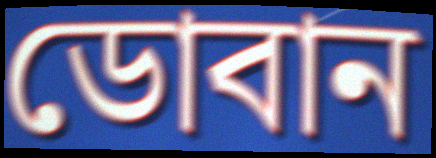
ডোবান